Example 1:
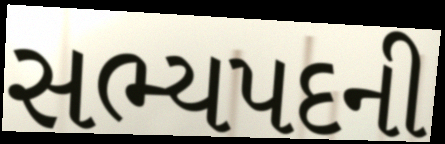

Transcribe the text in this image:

સભ્યપદની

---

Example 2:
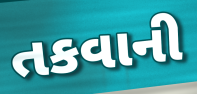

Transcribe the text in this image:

તકવાની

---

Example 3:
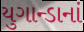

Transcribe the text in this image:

યુગાન્ડાનાં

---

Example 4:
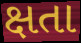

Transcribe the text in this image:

ક્ષતા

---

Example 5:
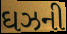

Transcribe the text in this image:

ઘઝની